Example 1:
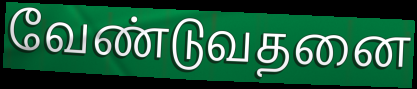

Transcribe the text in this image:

வேண்டுவதனை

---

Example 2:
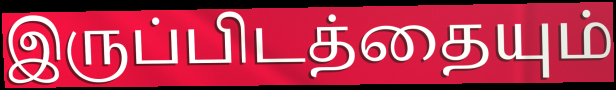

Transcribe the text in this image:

இருப்பிடத்தையும்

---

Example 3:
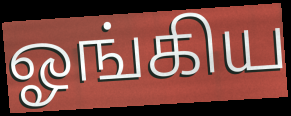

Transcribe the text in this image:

ஓங்கிய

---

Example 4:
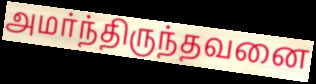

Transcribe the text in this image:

அமர்ந்திருந்தவனை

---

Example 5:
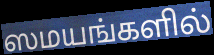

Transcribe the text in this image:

ஸமயங்களில்